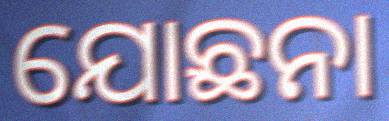
ଯୋଛନା